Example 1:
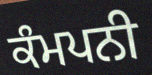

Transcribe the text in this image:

ਕੰਮਪਨੀ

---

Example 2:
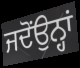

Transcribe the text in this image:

ਜਦੋਂਉਨ੍ਹਾਂ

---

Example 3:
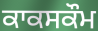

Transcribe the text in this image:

ਕਾਕਸਕੌਮ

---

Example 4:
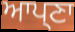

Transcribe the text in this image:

ਆਪ੍ਣਾ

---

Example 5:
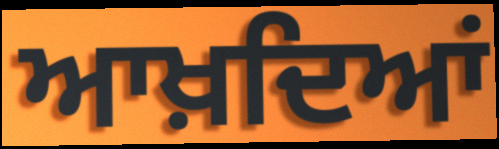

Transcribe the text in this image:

ਆਖ਼ਦਿਆਂ